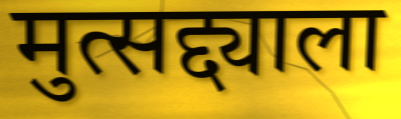
मुत्सद्द्याला